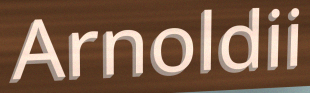
Arnoldii